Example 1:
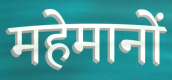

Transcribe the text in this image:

महेमानों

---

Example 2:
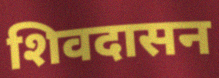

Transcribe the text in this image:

शिवदासन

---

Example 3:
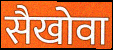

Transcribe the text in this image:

सैखोवा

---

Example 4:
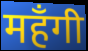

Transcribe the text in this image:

महँगी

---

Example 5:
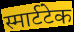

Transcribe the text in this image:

स्मार्टटेक